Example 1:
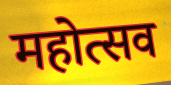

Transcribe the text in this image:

महोत्सव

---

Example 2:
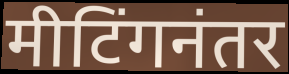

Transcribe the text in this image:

मीटिंगनंतर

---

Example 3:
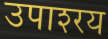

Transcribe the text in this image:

उपाश्रय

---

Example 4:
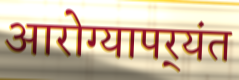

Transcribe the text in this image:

आरोग्यापर्यंत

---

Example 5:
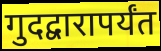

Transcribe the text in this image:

गुदद्वारापर्यंत